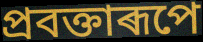
প্ৰবক্তাৰূপে